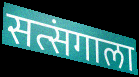
सत्संगाला